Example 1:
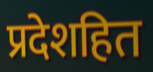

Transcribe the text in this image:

प्रदेशहित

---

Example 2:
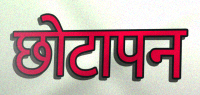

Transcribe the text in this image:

छोटापन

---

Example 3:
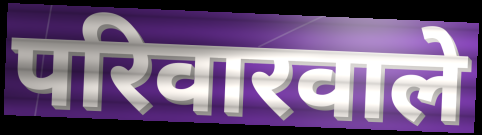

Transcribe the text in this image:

परिवारवाले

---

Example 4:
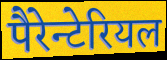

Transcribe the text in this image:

पैरेन्टेरियल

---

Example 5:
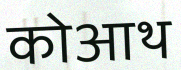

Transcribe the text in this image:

कोआथ